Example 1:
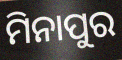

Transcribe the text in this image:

ମିନାପୁର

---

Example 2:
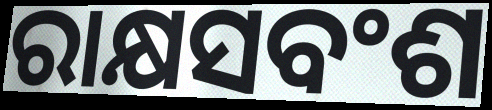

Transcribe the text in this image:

ରାକ୍ଷସବଂଶ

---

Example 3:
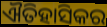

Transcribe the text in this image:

ଐତିହାସିକର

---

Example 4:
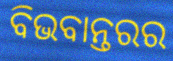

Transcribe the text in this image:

ବିଭବାନ୍ତରର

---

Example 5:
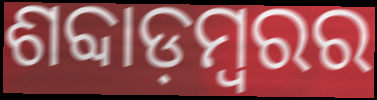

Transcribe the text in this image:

ଶବ୍ଦାଡ଼ମ୍ବରର